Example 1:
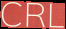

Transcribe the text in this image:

CRL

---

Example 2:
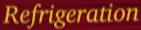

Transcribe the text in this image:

Refrigeration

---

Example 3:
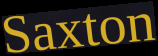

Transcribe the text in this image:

Saxton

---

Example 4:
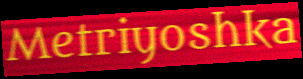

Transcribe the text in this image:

Metriyoshka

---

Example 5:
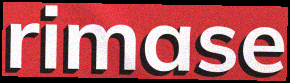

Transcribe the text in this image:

rimase